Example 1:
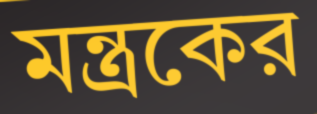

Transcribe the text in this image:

মন্ত্রকের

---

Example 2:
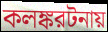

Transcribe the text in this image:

কলঙ্করটনায়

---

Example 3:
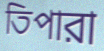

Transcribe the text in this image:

তিপারা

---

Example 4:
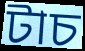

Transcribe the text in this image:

টাচ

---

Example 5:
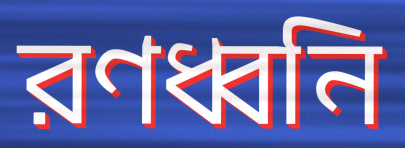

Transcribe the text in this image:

রণধ্বনি